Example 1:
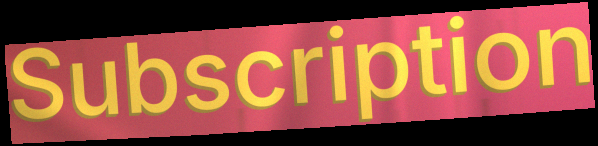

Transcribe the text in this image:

Subscription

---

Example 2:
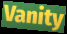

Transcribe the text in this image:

Vanity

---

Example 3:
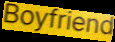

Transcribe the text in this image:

Boyfriend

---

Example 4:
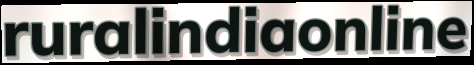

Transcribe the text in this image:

ruralindiaonline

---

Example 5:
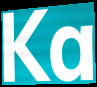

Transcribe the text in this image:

Ka